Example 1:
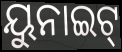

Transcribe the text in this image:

ୟୁନାଇଟ୍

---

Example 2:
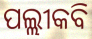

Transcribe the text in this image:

ପଲ୍ଲୀକବି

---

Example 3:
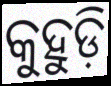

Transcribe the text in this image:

କୁହୁଡ଼ି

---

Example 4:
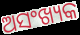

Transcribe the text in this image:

ଅସଂଖ୍ୟକ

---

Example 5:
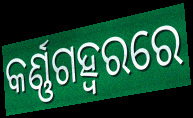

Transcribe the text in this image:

କର୍ଣ୍ଣଗହ୍ଵରରେ